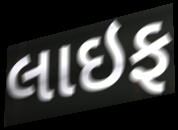
લાઇફ